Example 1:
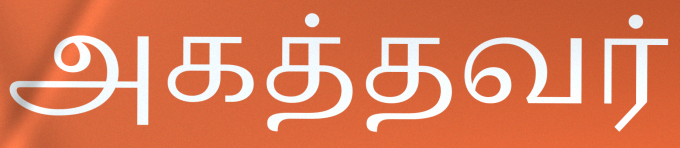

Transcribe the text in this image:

அகத்தவர்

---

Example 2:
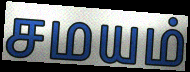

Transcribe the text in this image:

சமயம்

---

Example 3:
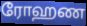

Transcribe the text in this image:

ரோஹண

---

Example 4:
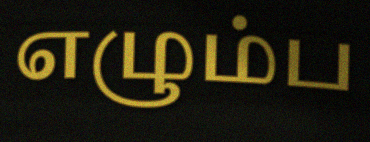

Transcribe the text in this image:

எழும்ப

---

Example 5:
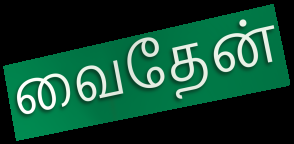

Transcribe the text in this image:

வைதேன்